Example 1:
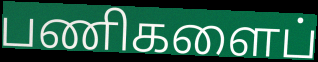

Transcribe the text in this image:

பணிகளைப்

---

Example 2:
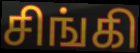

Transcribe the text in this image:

சிங்கி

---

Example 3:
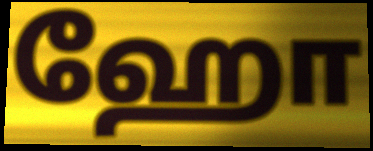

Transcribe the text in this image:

ஹோ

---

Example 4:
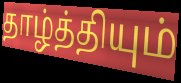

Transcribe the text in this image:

தாழ்த்தியும்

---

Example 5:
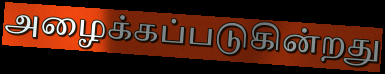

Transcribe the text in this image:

அழைக்கப்படுகின்றது